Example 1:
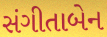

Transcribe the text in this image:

સંગીતાબેન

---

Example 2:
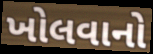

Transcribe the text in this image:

ખોલવાનો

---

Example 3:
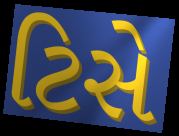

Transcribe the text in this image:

ટિસે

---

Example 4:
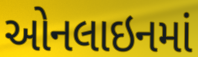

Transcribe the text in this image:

ઓનલાઇનમાં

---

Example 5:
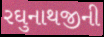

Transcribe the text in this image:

રઘુનાથજીની